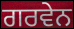
ਗਰਵੇਨ